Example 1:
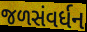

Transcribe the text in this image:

જળસંવર્ધન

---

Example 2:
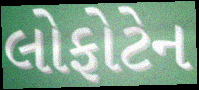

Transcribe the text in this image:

લોફોટેન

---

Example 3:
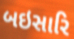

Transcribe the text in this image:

બઇસારિ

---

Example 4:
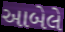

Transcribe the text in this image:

આબેલે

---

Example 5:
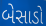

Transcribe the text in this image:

બેસાડો